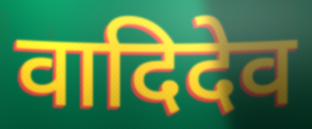
वादिदेव